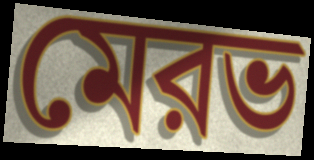
মেরভ